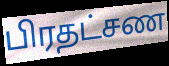
பிரதட்சண